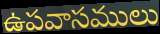
ఉపవాసములు